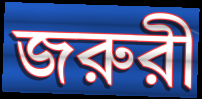
জরুরী